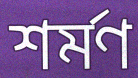
শর্মণ